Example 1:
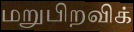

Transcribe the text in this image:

மறுபிறவிக்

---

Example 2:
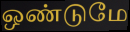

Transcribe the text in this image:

ஒண்டுமே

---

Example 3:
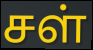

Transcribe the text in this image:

சள்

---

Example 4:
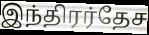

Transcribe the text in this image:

இந்திரர்தேச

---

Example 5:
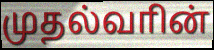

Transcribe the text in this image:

முதல்வரின்